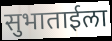
सुभाताईला